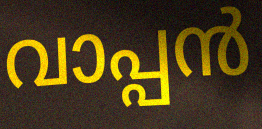
വാപ്പൻ